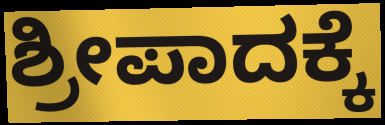
ಶ್ರೀಪಾದಕ್ಕೆ